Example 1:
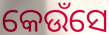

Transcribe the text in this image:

କେଉଁସେ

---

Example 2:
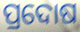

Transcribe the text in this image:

ପ୍ରଦୋଷ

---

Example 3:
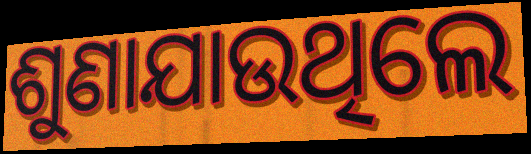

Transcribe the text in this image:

ଶୁଣାଯାଉଥିଲେ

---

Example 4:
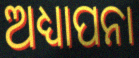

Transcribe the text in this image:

ଅଧ୍ଯାପନା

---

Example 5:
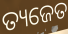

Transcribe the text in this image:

ତ୍ୟଜେତ